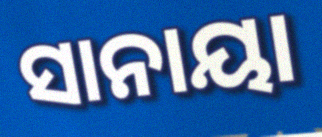
ସାନାୟା